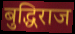
बुद्धिराज